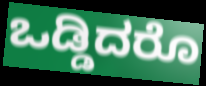
ಒಡ್ಡಿದರೊ